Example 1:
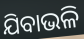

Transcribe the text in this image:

ଯିବାଭଳି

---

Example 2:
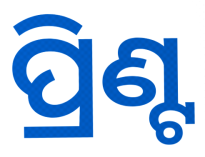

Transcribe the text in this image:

ପ୍ରିଣ୍ଟ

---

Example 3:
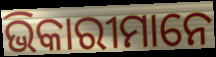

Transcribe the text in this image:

ଭିକାରୀମାନେ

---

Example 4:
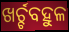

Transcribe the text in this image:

ଖର୍ଚ୍ଚବହୁଳ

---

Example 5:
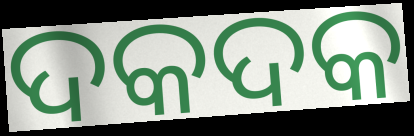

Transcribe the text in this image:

ଦକଦକ